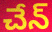
చేన్